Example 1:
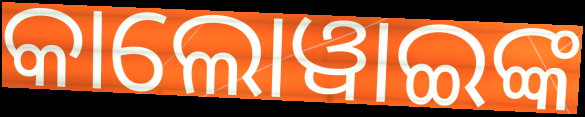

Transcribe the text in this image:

କାଲୋୱାଇଙ୍କ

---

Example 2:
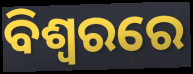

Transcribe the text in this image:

ବିଶ୍ବରରେ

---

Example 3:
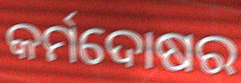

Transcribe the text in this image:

କର୍ମଦୋଷର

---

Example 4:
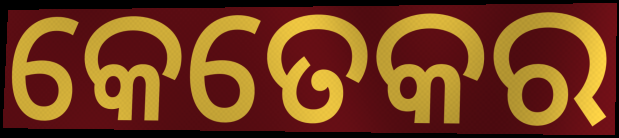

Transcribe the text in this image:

କେତେକର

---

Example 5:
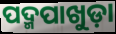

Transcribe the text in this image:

ପଦ୍ମପାଖୁଡ଼ା